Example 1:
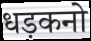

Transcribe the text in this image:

धड़कनो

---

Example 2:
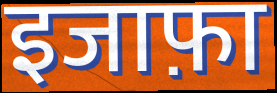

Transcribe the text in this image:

इजाफ़ा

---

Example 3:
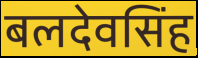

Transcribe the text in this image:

बलदेवसिंह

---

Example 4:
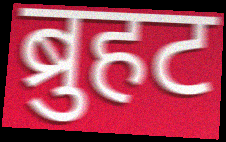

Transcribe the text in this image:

ब्रुहट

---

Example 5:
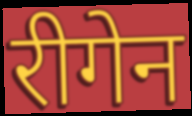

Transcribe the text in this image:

रीगेन